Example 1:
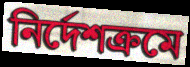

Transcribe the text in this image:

নির্দেশক্রমে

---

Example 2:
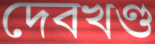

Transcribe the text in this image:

দেবখণ্ড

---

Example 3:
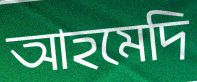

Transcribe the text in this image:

আহমেদি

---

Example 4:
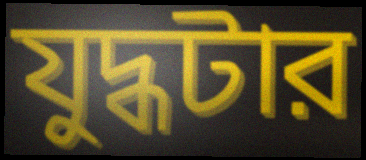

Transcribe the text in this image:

যুদ্ধটার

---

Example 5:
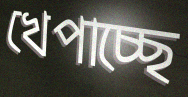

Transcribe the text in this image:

খেপাচ্ছে